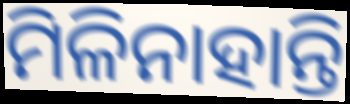
ମିଳିନାହାନ୍ତି